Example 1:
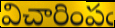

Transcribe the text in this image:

విచారింపఁ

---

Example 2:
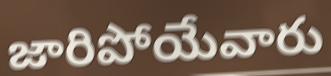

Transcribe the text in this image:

జారిపోయేవారు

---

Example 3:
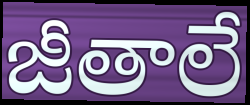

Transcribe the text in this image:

జీతాలే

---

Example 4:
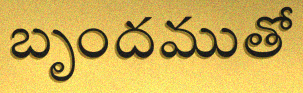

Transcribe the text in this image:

బృందముతో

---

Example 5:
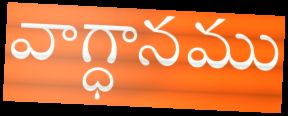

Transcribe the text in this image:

వాగ్ధానము